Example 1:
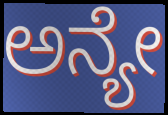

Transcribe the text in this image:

ಅನ್ಯೇ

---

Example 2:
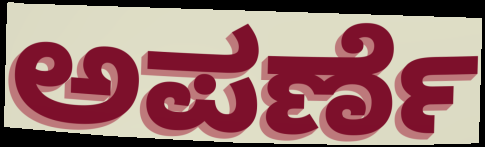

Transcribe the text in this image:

ಅಪರ್ಣೆ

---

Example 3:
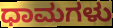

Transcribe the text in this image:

ಧಾಮಗಳು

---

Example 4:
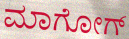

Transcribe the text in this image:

ಮಾಗೋಗ್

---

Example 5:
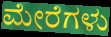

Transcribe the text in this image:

ಮೇರೆಗಳು